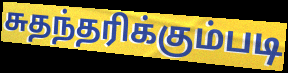
சுதந்தரிக்கும்படி